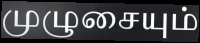
முழுசையும்